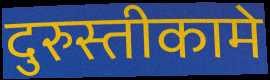
दुरुस्तीकामे